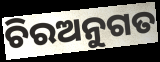
ଚିରଅନୁଗତ